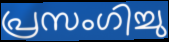
പ്രസംഗിച്ചു